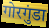
गोरगुंडा